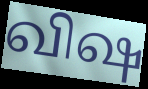
விஷ